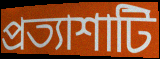
প্রত্যাশাটি